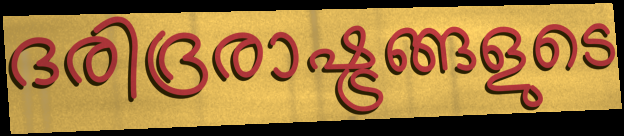
ദരിദ്രരാഷ്ട്രങ്ങളുടെ